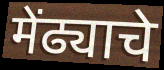
मेंढ्याचे